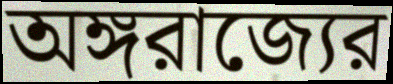
অঙ্গরাজ্যের